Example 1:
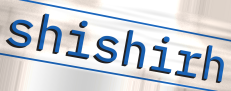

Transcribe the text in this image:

shishirh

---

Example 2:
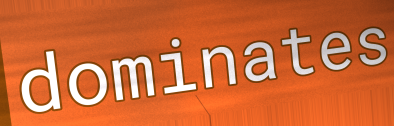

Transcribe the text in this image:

dominates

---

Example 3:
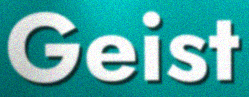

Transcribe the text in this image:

Geist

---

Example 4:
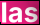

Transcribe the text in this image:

las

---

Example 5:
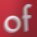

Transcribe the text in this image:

of